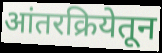
आंतरक्रियेतून